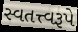
સ્વતત્ત્વરૂપે